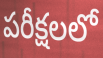
పరీక్షలలో